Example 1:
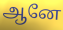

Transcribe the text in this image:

ஆனே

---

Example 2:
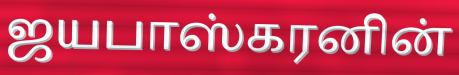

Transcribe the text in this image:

ஜயபாஸ்கரனின்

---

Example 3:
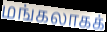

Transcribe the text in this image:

மங்கலாகக்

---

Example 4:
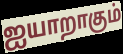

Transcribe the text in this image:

ஐயாறாகும்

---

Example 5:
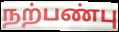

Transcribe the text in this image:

நற்பண்பு